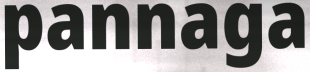
pannaga